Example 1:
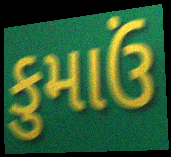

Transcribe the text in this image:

કુમાઉં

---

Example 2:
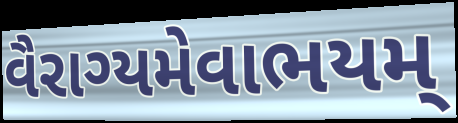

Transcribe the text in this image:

વૈરાગ્યમેવાભયમ્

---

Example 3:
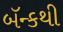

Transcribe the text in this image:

બૅન્કથી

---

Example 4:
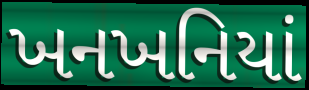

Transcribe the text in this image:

ખનખનિયાં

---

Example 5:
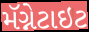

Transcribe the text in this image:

મૅગ્નેટાઇટ